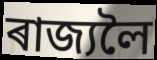
ৰাজ্যলৈ